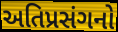
અતિપ્રસંગનો